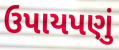
ઉપાયપણું